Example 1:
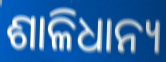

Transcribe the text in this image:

ଶାଳିଧାନ୍ୟ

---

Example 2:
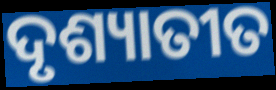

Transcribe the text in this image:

ଦୃଶ୍ୟାତୀତ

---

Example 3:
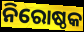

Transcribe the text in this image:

ନିରୋଷ୍ଠକ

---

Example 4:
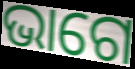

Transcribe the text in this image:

ଭାଗେ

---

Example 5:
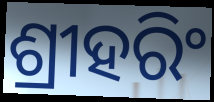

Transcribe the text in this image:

ଶ୍ରୀହରିଂ